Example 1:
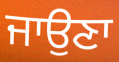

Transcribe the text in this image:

ਜਾਉਣਾ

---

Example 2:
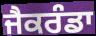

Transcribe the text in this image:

ਜੈਕਰੰਡਾ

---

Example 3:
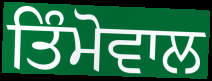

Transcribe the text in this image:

ਤਿੰਮੋਵਾਲ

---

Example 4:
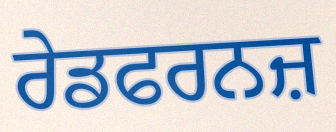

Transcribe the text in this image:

ਰੇਡਫਰਨਜ਼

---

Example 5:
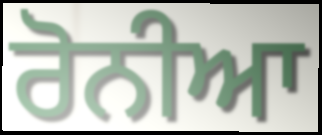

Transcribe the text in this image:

ਰੋਨੀਆ